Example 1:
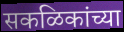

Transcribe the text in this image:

सकळिकांच्या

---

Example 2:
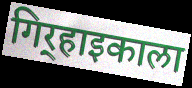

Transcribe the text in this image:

गिर्हाइकाला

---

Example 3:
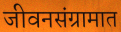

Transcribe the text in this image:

जीवनसंग्रामात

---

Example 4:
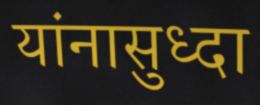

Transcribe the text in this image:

यांनासुध्दा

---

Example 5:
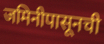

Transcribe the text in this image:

जमिनीपासूनची